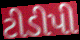
ટીડીપી